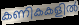
കണികകളിൽ